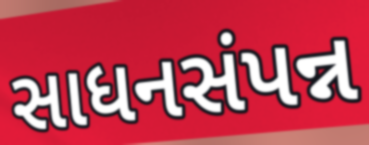
સાધનસંપન્ન